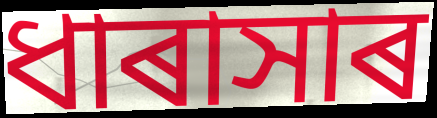
ধাৰাসাৰ